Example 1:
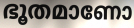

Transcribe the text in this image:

ഭൂതമാണോ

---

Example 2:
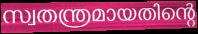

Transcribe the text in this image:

സ്വതന്ത്രമായതിന്റെ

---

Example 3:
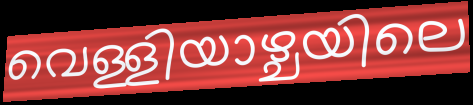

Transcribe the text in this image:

വെള്ളിയാഴ്ചയിലെ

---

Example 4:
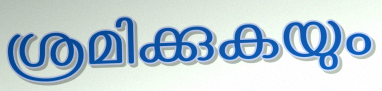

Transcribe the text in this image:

ശ്രമിക്കുകയും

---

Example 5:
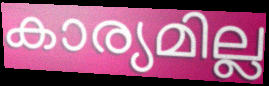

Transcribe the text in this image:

കാര്യമില്ല